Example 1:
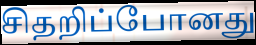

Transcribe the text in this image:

சிதறிப்போனது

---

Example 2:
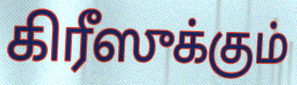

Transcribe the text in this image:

கிரீஸுக்கும்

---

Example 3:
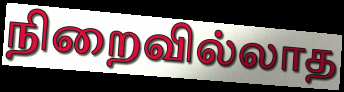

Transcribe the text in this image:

நிறைவில்லாத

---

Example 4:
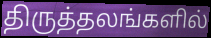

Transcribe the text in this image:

திருத்தலங்களில்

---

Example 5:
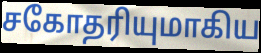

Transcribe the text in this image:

சகோதரியுமாகிய